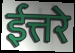
ईत्तरे